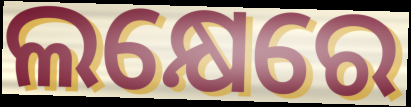
ଲକ୍ଷେରେ